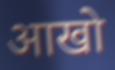
आखो